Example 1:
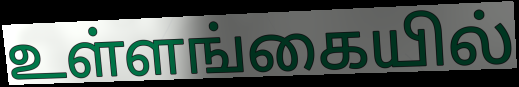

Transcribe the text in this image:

உள்ளங்கையில்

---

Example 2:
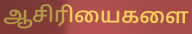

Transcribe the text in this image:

ஆசிரியைகளை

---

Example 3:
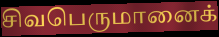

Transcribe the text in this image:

சிவபெருமானைக்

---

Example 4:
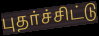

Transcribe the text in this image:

புதர்ச்சிட்டு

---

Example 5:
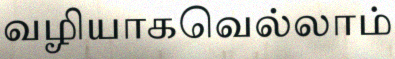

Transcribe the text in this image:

வழியாகவெல்லாம்